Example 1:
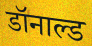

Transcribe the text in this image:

डॉनाल्ड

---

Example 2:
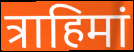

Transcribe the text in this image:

त्राहिमां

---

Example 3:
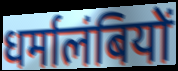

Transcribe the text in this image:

धर्मालंबियों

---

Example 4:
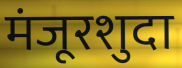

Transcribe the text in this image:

मंजूरशुदा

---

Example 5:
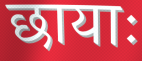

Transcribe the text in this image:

छायाः